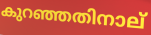
കുറഞ്ഞതിനാല്